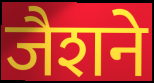
जैशने